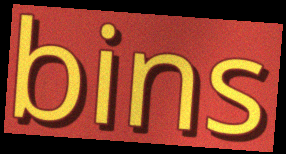
bins